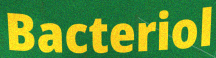
Bacteriol